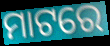
ମାଟରେ